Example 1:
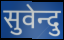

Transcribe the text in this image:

सुवेन्दु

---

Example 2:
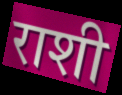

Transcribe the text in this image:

राशी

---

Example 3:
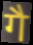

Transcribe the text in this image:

गै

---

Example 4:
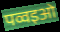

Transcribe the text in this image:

पव्वइओ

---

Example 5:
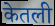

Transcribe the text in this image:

केतली